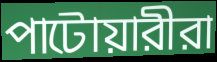
পাটোয়ারীরা